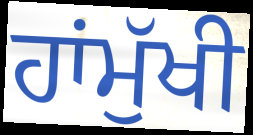
ਹਾਂਮੁੱਖੀ